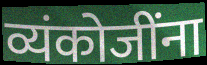
व्यंकोजींना